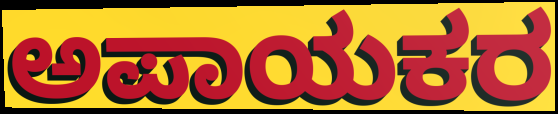
ಅಪಾಯಕರ